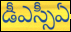
డీఎస్సీఏ